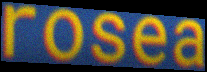
rosea